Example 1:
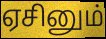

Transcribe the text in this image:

ஏசினும்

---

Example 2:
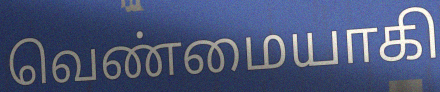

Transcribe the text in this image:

வெண்மையாகி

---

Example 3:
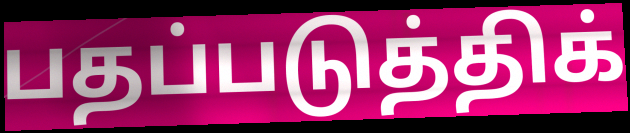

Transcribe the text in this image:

பதப்படுத்திக்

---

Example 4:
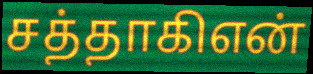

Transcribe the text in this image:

சத்தாகிஎன்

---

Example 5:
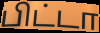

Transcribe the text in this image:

பிட்டா